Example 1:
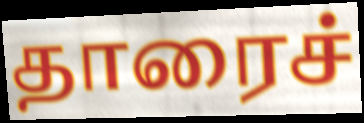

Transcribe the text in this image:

தாரைச்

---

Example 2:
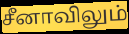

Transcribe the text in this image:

சீனாவிலும்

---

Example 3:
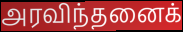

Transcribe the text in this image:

அரவிந்தனைக்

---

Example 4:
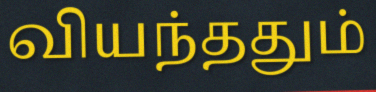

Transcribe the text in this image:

வியந்ததும்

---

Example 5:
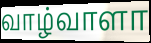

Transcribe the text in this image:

வாழ்வாளா